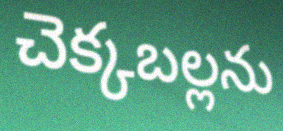
చెక్కబల్లను